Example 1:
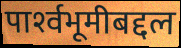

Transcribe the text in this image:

पार्श्वभूमीबद्दल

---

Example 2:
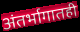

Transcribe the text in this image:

अंतर्भागातही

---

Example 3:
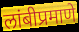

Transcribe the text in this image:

लांबीप्रमाणे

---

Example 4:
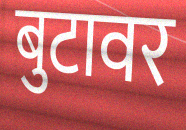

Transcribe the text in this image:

बुटावर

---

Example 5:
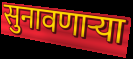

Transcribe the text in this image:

सुनावणाऱ्या